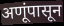
अणूंपासून